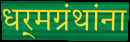
धर्मग्रंथांना